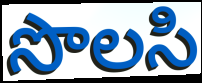
సొలసి